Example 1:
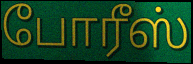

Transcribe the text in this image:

போரீஸ்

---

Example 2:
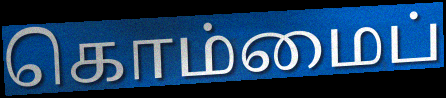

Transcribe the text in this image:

கொம்மைப்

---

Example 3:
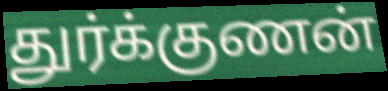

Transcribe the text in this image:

துர்க்குணன்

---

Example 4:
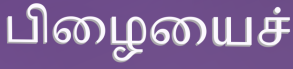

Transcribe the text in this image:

பிழையைச்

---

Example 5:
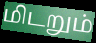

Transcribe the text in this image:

மிடறும்